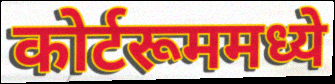
कोर्टरूममध्ये